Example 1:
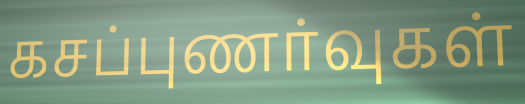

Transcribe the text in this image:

கசப்புணர்வுகள்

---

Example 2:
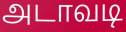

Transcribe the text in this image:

அடாவடி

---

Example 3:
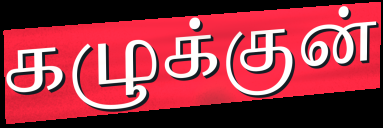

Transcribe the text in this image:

கழுக்குன்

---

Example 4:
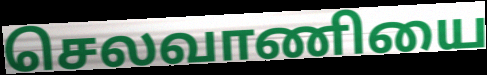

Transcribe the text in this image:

செலவாணியை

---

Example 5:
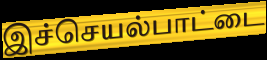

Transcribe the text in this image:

இச்செயல்பாட்டை